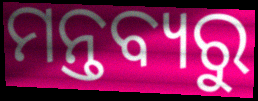
ମନ୍ତବ୍ୟରୁ